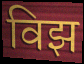
विझ